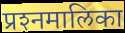
प्रश्नमालिका